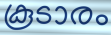
കൂടാരം